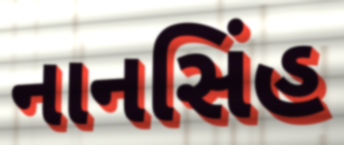
નાનસિંહ